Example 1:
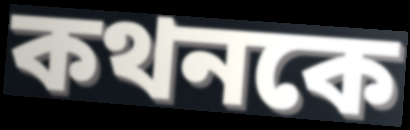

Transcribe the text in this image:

কথনকে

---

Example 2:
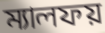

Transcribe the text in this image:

ম্যালফয়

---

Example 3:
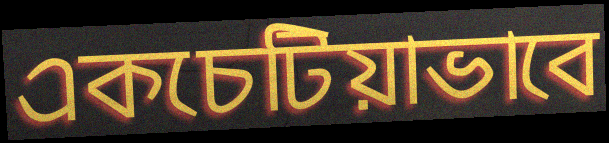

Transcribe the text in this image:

একচেটিয়াভাবে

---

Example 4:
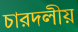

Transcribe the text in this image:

চারদলীয়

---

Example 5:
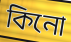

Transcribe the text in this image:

কিনো